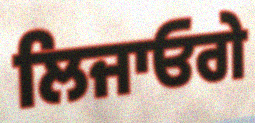
ਲਿਜਾਓਗੇ